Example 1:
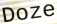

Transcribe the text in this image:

Doze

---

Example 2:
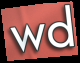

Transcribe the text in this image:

wd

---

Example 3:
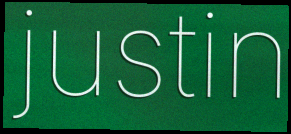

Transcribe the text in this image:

justin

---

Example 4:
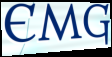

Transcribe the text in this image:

EMG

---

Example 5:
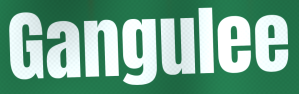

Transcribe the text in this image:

Gangulee